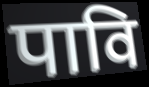
पावि